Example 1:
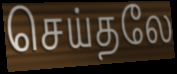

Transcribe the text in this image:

செய்தலே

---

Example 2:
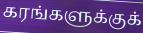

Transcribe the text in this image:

கரங்களுக்குக்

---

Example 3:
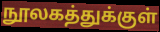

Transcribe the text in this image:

நூலகத்துக்குள்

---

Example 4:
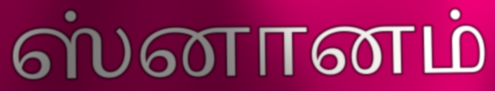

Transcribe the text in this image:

ஸ்னானம்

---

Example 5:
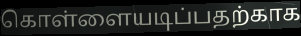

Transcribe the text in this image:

கொள்ளையடிப்பதற்காக